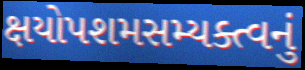
ક્ષયોપશમસમ્યક્ત્વનું